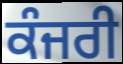
ਕੰਜਰੀ